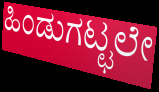
ಹಿಂಡುಗಟ್ಟಲೇ